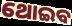
ଥୋଇବ